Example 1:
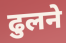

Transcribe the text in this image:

ढुलने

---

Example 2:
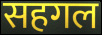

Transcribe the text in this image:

सहगल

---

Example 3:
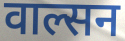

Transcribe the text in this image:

वाल्सन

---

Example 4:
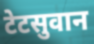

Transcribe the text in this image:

टेटसुवान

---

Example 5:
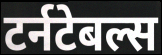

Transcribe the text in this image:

टर्नटेबल्स